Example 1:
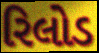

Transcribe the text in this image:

રિલોડ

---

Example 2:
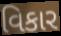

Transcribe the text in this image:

વિકાર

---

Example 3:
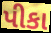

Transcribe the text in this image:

પીકા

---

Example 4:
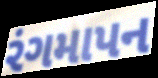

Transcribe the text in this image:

રંગમાપન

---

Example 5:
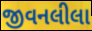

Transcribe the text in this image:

જીવનલીલા